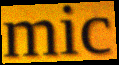
mic